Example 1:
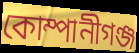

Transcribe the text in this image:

কোম্পানীগঞ্জ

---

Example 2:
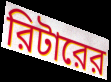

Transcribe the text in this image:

রিটারের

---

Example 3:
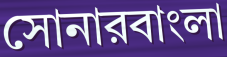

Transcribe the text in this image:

সোনারবাংলা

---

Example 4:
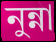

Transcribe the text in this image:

নুন্না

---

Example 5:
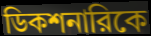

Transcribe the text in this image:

ডিকশনারিকে